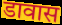
डावास